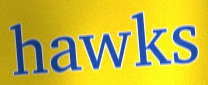
hawks